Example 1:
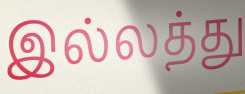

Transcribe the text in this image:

இல்லத்து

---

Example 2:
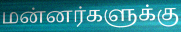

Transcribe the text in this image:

மன்னர்களுக்கு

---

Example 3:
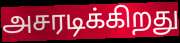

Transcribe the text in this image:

அசரடிக்கிறது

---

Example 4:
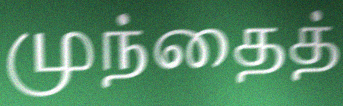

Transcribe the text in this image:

முந்தைத்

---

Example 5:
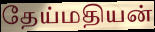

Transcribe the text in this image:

தேய்மதியன்